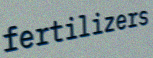
fertilizers